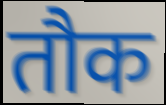
तौक